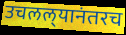
उचलल्यानंतरच